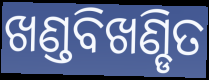
ଖଣ୍ଡବିଖଣ୍ଡିତ